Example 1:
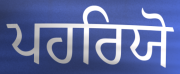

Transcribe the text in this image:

ਪਹਰਿਯੋ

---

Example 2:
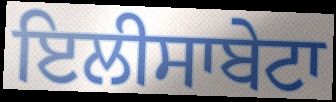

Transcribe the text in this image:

ਇਲੀਸਾਬੇਟਾ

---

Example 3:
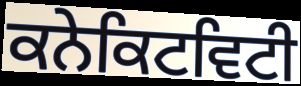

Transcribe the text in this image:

ਕਨੇਕਿਟਵਿਟੀ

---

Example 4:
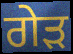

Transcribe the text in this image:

ਗੇੜ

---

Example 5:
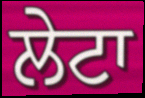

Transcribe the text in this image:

ਲੇਟਾ